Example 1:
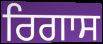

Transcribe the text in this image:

ਰਿਗਾਸ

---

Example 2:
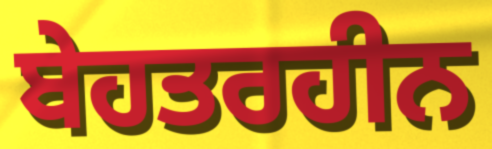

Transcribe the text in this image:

ਬੇਹਤਰਹੀਨ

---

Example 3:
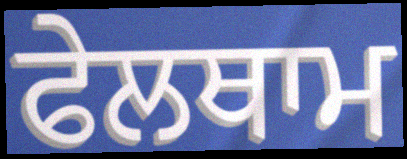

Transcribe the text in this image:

ਫੇਲਥਾਮ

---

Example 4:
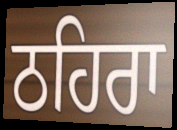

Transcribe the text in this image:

ਠਹਿਰਾ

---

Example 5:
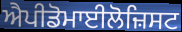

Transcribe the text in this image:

ਐਪੀਡੋਮਾਈਲੋਜ਼ਿਸਟ